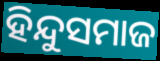
ହିନ୍ଦୁସମାଜ